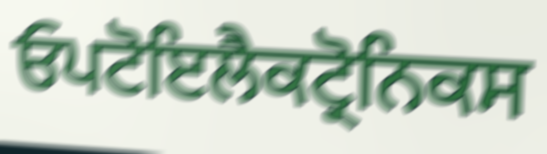
ਓਪਟੋਇਲੈਕਟ੍ਰੋਨਿਕਸ